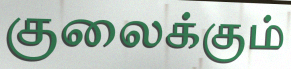
குலைக்கும்